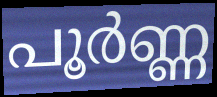
പൂർണ്ണ